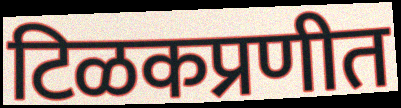
टिळकप्रणीत